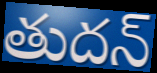
తుదన్